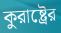
কুরাষ্ট্রের